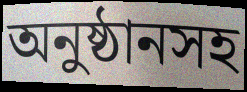
অনুষ্ঠানসহ